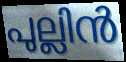
പുല്ലിൻ